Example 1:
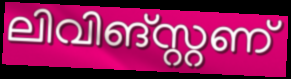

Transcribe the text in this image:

ലിവിങ്സ്റ്റണ്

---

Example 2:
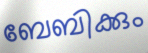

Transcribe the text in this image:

ബേബിക്കും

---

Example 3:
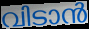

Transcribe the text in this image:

വിടാൻ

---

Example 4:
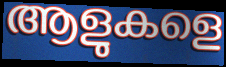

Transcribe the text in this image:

ആളുകളെ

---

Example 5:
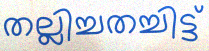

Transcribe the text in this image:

തല്ലിച്ചതച്ചിട്ട്